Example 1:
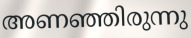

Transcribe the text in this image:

അണഞ്ഞിരുന്നു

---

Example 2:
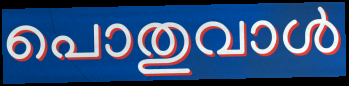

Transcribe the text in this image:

പൊതുവാൾ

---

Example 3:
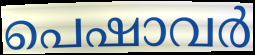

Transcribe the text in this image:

പെഷാവർ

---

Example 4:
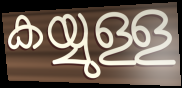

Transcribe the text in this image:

കയ്യുള്ള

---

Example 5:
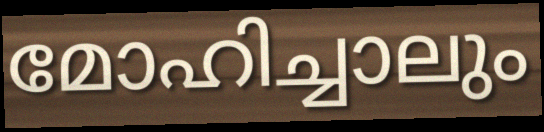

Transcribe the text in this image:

മോഹിച്ചാലും